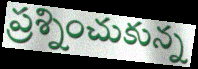
ప్రశ్నించుకున్న